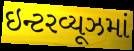
ઇન્ટરવ્યૂઝમાં